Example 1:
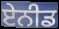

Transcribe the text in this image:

ਏਨੀਡ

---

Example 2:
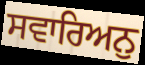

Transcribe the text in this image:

ਸਵਾਰਿਅਨੁ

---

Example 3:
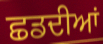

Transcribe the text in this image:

ਛਡਦੀਆਂ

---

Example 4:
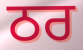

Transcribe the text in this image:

ਠਰ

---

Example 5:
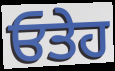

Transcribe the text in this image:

ਓਤੇਹ